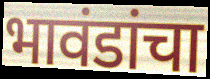
भावंडांचा